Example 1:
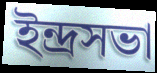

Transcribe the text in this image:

ইন্দ্রসভা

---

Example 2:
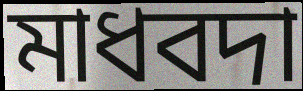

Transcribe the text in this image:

মাধবদা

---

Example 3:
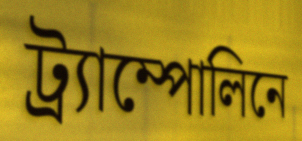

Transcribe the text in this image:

ট্র্যাম্পোলিনে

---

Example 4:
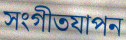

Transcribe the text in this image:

সংগীতযাপন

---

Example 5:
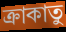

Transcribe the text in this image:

ক্রাকাতু